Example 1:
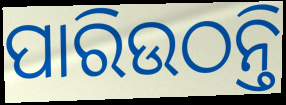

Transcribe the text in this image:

ପାରିଉଠନ୍ତି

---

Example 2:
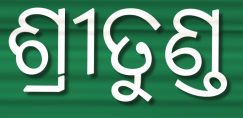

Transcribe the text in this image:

ଶ୍ରୀତୁଣ୍ଡ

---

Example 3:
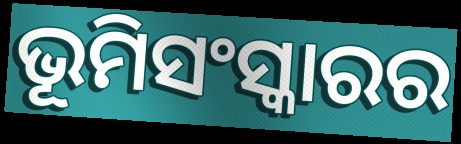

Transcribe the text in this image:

ଭୂମିସଂସ୍କାରର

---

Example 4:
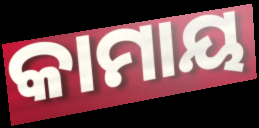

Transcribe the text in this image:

କାମାୟ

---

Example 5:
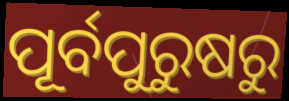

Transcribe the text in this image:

ପୂର୍ବପୁରୁଷରୁ